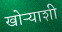
खोऱ्याशी